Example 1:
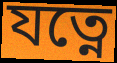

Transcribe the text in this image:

যত্নে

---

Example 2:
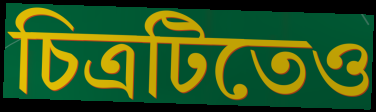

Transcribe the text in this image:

চিত্রটিতেও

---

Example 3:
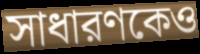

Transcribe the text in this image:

সাধারণকেও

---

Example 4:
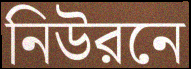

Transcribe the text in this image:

নিউরনে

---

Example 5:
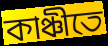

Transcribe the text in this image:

কাঞ্চীতে